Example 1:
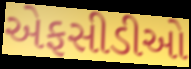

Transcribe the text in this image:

એફસીડીઓ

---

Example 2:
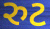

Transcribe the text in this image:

રુટ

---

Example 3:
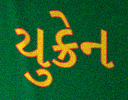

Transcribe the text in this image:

યુક્રેન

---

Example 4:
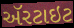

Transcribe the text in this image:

ઍરટાઇટ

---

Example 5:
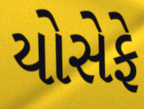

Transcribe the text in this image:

યોસેફે